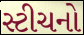
સ્ટીચનો